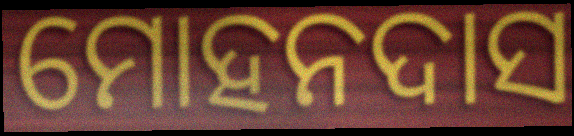
ମୋହନଦାସ